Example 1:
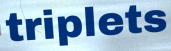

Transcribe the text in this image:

triplets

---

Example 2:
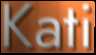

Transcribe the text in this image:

Kati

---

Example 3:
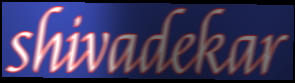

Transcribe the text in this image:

shivadekar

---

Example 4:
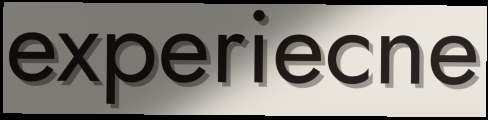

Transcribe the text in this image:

experiecne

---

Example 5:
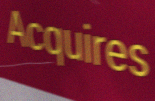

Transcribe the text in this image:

Acquires